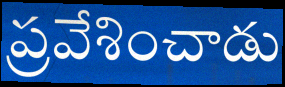
ప్రవేశించాడు